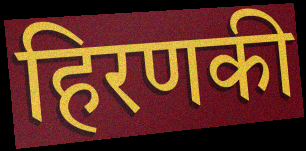
हिरणकी